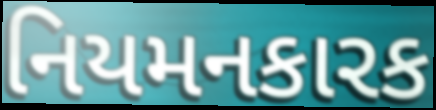
નિયમનકારક